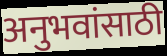
अनुभवांसाठी